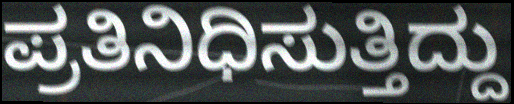
ಪ್ರತಿನಿಧಿಸುತ್ತಿದ್ದು